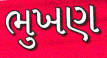
ભુખણ